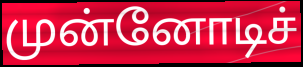
முன்னோடிச்